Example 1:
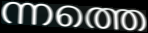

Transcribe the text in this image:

ന്നത്തെ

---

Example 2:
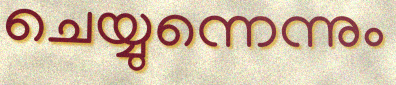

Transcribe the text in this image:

ചെയ്യുന്നെന്നും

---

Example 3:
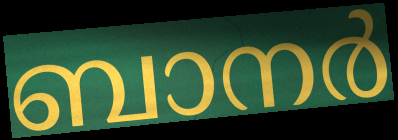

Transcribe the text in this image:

ബാനർ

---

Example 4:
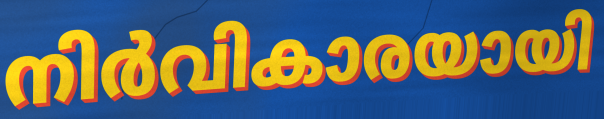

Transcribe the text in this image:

നിർവികാരയായി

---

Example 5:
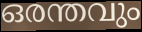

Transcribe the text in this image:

ഒരന്തവും